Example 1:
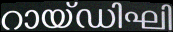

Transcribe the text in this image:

റായ്ഡിഘി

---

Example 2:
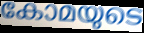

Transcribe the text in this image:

കോമയുടെ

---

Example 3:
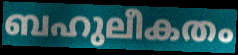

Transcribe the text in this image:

ബഹുലീകതം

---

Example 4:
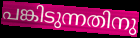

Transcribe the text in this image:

പങ്കിടുന്നതിനു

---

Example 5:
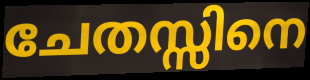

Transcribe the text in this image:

ചേതസ്സിനെ